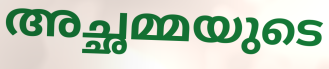
അച്ഛമ്മയുടെ